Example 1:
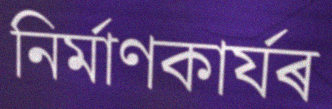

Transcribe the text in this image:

নিৰ্মাণকাৰ্যৰ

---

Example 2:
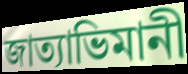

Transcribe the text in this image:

জাত্যাভিমানী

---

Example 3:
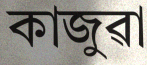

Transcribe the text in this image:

কাজুৱা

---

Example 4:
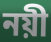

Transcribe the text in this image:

নয়ী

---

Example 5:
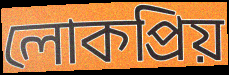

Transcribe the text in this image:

লোকপ্ৰিয়